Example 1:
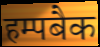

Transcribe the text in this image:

हम्पबैक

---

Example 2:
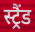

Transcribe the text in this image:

स्ट्रैंड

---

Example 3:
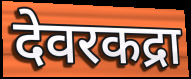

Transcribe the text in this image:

देवरकद्रा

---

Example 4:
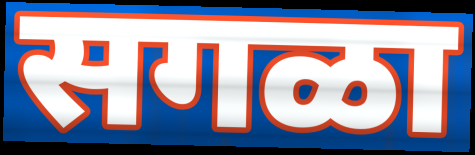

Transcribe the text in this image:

सगळा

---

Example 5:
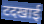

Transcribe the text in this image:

टदखाई